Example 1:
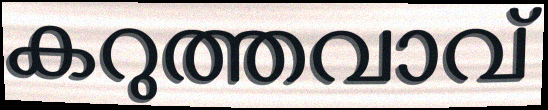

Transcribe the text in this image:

കറുത്തവാവ്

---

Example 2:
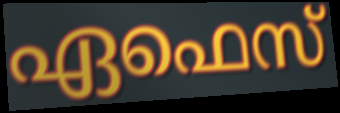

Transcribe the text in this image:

ഏഫെസ്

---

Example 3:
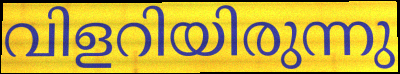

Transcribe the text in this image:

വിളറിയിരുന്നു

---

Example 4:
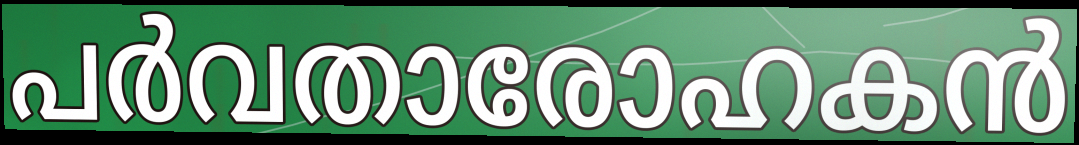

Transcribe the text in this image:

പർവതാരോഹകൻ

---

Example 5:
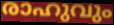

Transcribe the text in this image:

രാഹുവും